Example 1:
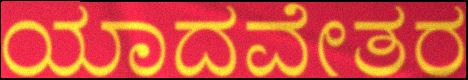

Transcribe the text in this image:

ಯಾದವೇತರ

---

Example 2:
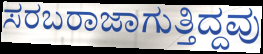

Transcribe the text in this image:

ಸರಬರಾಜಾಗುತ್ತಿದ್ದವು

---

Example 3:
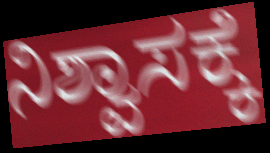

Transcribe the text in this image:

ನಿಶ್ವಾಸಕ್ಕೆ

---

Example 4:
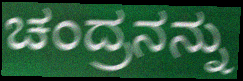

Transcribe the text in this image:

ಚಂದ್ರನನ್ನು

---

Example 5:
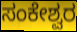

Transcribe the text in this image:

ಸಂಕೇಶ್ವರ